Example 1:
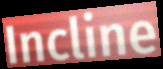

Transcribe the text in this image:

Incline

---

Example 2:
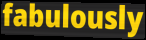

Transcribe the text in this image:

fabulously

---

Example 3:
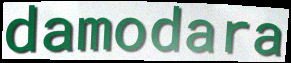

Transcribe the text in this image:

damodara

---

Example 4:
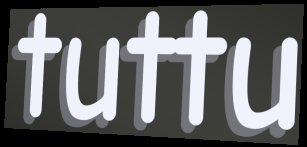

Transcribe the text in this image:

tuttu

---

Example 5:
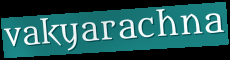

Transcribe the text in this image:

vakyarachna